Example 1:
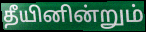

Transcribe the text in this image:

தீயினின்றும்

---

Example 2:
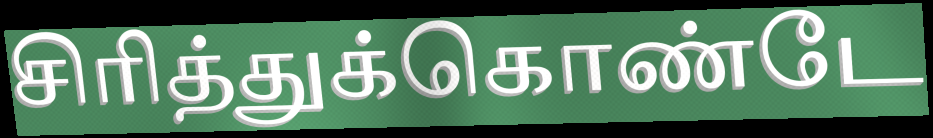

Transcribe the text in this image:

சிரித்துக்கொண்டே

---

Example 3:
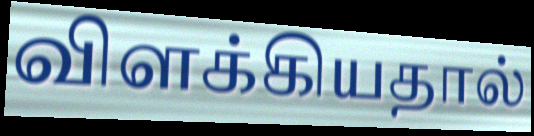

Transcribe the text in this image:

விளக்கியதால்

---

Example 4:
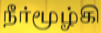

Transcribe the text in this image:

நீர்மூழ்கி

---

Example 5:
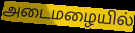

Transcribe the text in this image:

அடைமழையில்